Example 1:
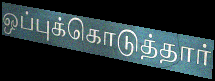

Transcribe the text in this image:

ஒப்புக்கொடுத்தார்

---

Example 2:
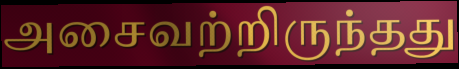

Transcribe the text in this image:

அசைவற்றிருந்தது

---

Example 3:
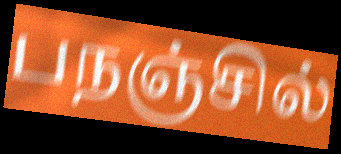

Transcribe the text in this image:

பநஞ்சில்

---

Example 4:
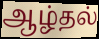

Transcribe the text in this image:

ஆழ்தல்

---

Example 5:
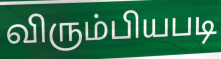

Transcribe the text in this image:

விரும்பியபடி